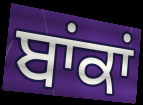
ਬਾਂਕਾਂ